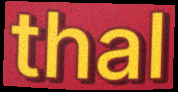
thal